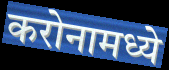
करोनामध्ये